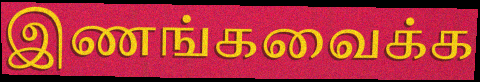
இணங்கவைக்க